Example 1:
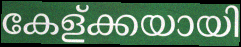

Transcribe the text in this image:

കേള്ക്കയായി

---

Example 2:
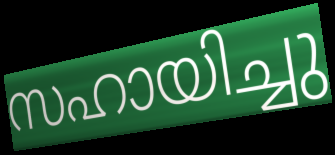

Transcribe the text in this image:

സഹായിച്ചു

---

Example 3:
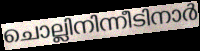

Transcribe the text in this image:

ചൊല്ലിനിന്നീടിനാർ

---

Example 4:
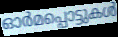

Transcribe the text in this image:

ഓർമപ്പൊട്ടുകൾ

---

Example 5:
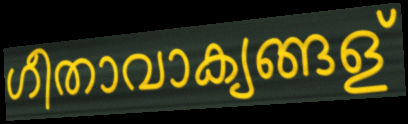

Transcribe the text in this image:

ഗീതാവാക്യങ്ങള്